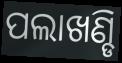
ପଲାଖଣ୍ଡି